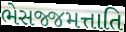
ભેસજ્જમત્તાતિ